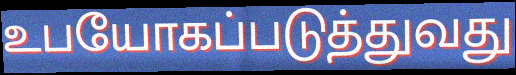
உபயோகப்படுத்துவது